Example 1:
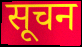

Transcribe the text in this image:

सूचन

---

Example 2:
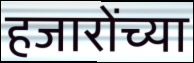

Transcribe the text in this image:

हजारोंच्या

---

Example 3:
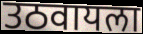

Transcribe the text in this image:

उठवायला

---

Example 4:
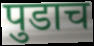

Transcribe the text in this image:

पुडाच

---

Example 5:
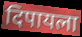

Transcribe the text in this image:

दिपायला